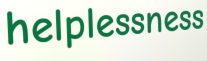
helplessness